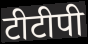
टीटीपी